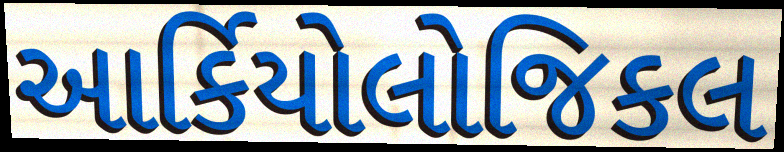
આર્કિયોલોજિકલ